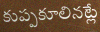
కుప్పకూలినట్లే